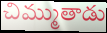
చిమ్ముతాడు